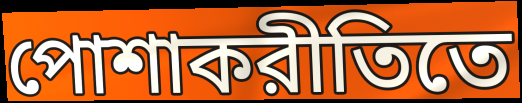
পোশাকরীতিতে